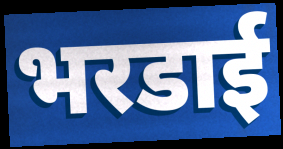
भरडाई